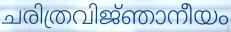
ചരിത്രവിജ്‌ഞാനീയം